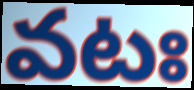
వటః